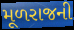
મૂળરાજની